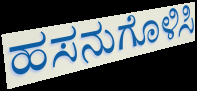
ಹಸನುಗೊಳಿಸಿ